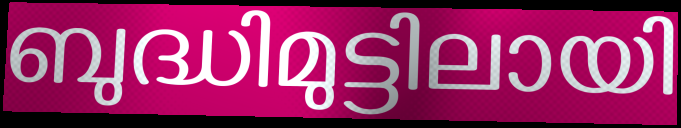
ബുദ്ധിമുട്ടിലായി